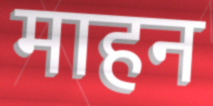
माहन